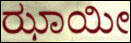
ಝಾಯೀ